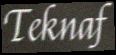
Teknaf